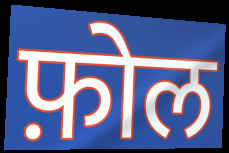
फ़ोल